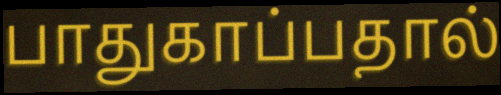
பாதுகாப்பதால்